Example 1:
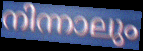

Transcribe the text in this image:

നിന്നാലും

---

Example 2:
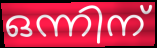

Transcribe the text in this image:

ഒന്നിന്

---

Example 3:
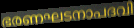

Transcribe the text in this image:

ഭരണഘടനാപദവി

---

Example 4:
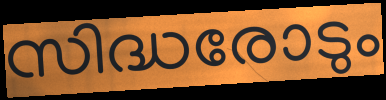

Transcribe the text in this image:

സിദ്ധരോടും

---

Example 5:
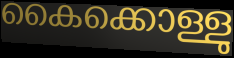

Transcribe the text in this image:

കൈക്കൊള്ളു